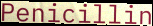
Penicillin